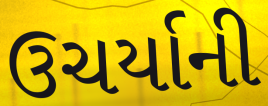
ઉચર્યાની